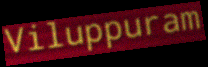
Viluppuram